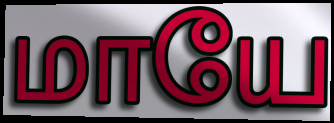
மாயே